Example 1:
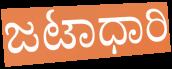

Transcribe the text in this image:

ಜಟಾಧಾರಿ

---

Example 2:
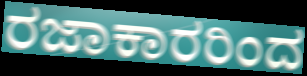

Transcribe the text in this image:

ರಜಾಕಾರರಿಂದ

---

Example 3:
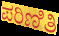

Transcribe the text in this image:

ಪರಿಣಿತಿ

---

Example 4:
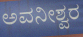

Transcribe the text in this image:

ಅವನೀಶ್ವರ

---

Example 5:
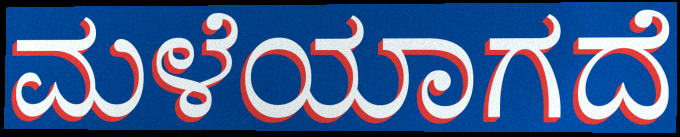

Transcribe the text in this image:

ಮಳೆಯಾಗದೆ